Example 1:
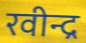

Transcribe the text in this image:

रवीन्द्र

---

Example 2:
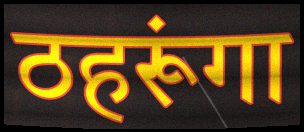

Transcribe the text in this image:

ठहरूंगा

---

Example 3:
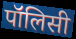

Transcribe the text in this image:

पॉलिसी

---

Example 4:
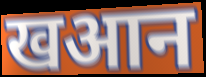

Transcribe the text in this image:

खआन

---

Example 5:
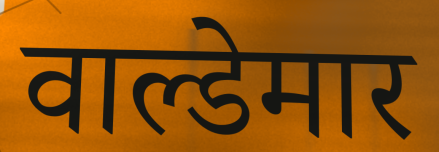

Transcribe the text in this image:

वाल्डेमार